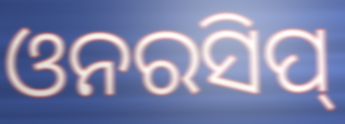
ଓନରସିପ୍